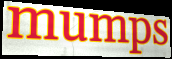
mumps